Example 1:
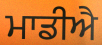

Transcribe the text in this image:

ਮਾਡੀਐ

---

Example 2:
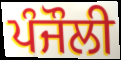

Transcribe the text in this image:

ਪੰਜੌਲੀ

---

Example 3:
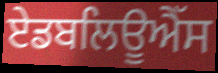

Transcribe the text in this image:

ਏਡਬਲਿਊਐੱਸ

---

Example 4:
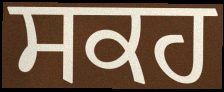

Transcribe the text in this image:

ਸਕਹ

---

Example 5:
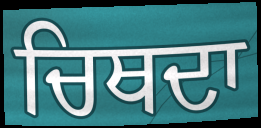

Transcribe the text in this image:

ਚਿਥਦਾ